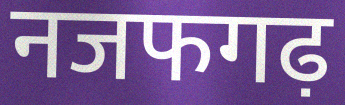
नजफगढ़